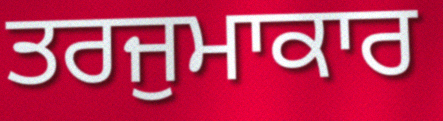
ਤਰਜੁਮਾਕਾਰ